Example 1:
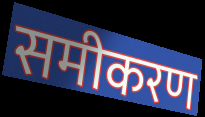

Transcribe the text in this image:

समीकरण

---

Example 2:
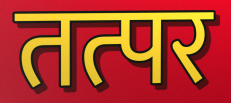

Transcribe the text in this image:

तत्‍पर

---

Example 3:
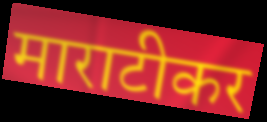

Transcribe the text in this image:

माराटीकर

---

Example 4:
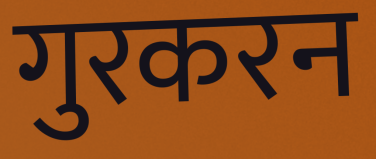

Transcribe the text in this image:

गुरकरन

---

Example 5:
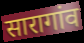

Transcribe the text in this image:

सारागांव